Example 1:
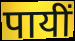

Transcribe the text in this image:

पायीं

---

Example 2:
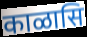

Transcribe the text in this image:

काळासि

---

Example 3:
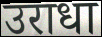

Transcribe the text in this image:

उराधा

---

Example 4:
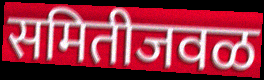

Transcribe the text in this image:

समितीजवळ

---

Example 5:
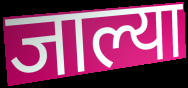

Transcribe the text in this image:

जाल्या